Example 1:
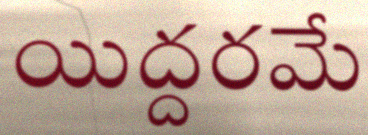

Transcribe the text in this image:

యిద్దరమే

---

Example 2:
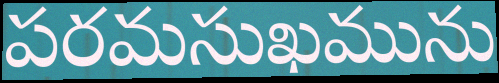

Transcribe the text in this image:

పరమసుఖమును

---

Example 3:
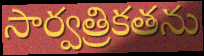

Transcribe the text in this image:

సార్వత్రికతను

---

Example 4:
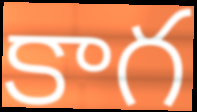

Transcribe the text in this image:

కాగ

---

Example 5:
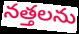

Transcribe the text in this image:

నత్తలను